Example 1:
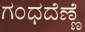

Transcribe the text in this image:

ಗಂಧದೆಣ್ಣೆ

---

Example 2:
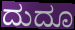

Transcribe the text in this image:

ದುದೂ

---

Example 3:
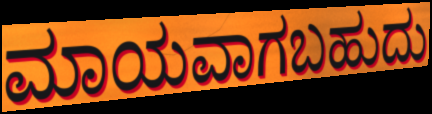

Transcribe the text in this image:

ಮಾಯವಾಗಬಹುದು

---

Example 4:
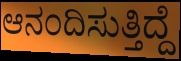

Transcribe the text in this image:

ಆನಂದಿಸುತ್ತಿದ್ದೆ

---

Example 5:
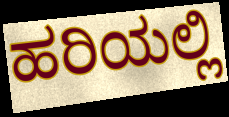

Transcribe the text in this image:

ಹರಿಯಲ್ಲಿ